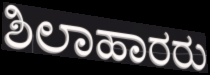
ಶಿಲಾಹಾರರು